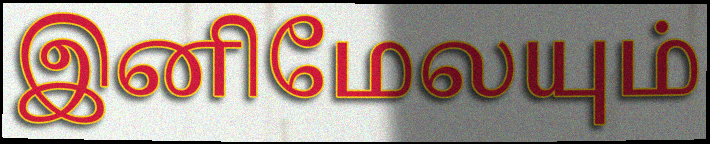
இனிமேலயும்